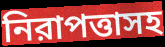
নিরাপত্তাসহ